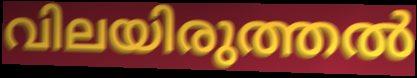
വിലയിരുത്തൽ